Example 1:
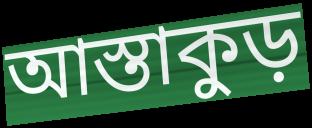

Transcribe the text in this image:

আস্তাকুড়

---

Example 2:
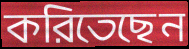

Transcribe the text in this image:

করিতেছেন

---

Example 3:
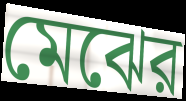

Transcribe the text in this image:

মেঝের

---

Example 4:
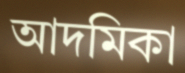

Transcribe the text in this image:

আদমিকা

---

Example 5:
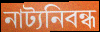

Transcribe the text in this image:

নাট্যনিবন্ধ